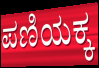
ಪಣಿಯಕ್ಕ